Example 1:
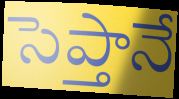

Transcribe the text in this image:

సెప్తానే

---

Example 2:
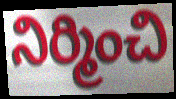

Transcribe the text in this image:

నిర్మించి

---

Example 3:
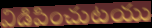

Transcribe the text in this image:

విడిపించుటయు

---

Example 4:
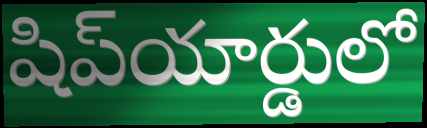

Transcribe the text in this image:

షిప్‌యార్డులో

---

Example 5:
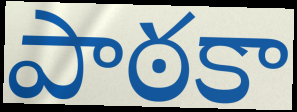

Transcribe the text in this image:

పాఠకా